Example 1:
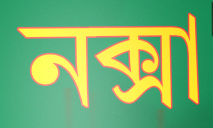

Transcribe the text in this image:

নক্সা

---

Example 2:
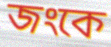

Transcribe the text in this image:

জংকে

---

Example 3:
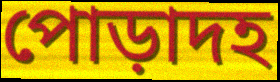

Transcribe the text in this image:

পোড়াদহ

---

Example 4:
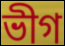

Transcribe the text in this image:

ভীগ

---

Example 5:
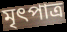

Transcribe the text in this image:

মৃৎপাত্র